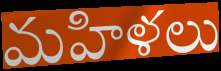
మహిళలు